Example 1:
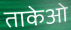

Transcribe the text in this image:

ताकेओ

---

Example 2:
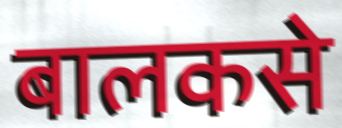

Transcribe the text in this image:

बालकसे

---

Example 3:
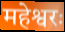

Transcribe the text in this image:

महेश्वरः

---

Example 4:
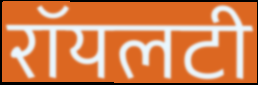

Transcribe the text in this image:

रॉयलटी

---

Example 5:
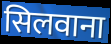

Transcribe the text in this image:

सिलवाना